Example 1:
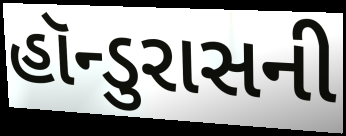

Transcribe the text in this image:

હૉન્ડુરાસની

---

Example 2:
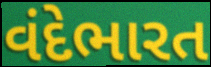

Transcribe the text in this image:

વંદેભારત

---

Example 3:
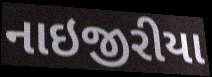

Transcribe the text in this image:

નાઇજીરીયા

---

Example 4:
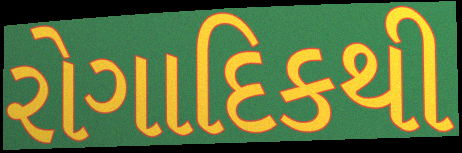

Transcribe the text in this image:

રોગાદિકથી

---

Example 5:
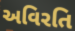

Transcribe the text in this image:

અવિરતિ